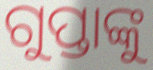
ଗୁପ୍ତାଙ୍କୁ